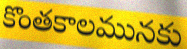
కొంతకాలమునకు